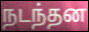
நடந்தன